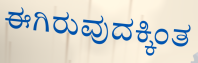
ಈಗಿರುವುದಕ್ಕಿಂತ